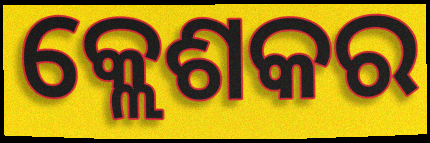
କ୍ଲେଶକର